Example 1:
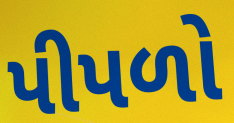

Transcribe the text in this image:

પીપળો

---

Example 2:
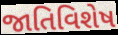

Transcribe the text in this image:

જાતિવિશેષ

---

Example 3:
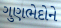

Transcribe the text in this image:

ગુણભેદોને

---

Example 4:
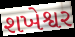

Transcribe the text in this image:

શખેશ્વર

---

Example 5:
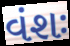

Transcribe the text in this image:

વંશઃ